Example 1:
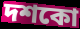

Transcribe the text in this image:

দশকো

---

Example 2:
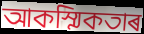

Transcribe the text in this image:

আকস্মিকতাৰ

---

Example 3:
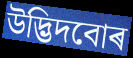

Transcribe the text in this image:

উদ্ভিদবোৰ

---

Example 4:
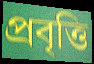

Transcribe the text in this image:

প্ৰবৃত্তি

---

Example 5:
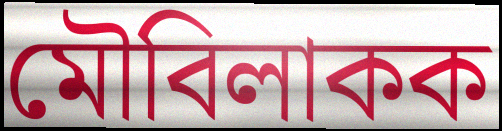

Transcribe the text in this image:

মৌবিলাকক